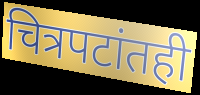
चित्रपटांतही